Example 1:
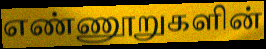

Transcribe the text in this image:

எண்ணூறுகளின்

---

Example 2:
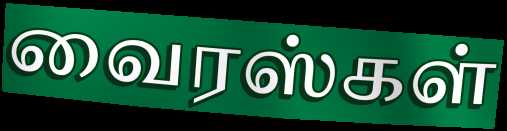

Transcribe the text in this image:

வைரஸ்கள்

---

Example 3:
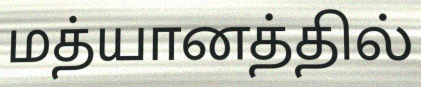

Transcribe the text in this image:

மத்யானத்தில்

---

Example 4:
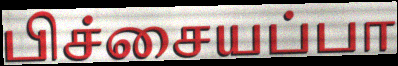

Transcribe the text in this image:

பிச்சையப்பா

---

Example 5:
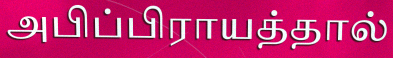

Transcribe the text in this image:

அபிப்பிராயத்தால்